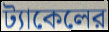
ট্যাকেলের